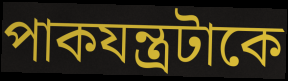
পাকযন্ত্রটাকে